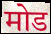
मोड